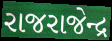
રાજરાજેન્દ્ર